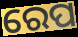
ରେପ